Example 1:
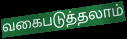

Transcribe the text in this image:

வகைபடுத்தலாம்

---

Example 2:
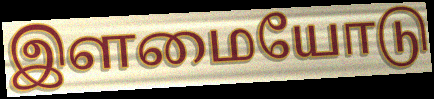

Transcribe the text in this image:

இளமையோடு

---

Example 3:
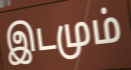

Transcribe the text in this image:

இடமும்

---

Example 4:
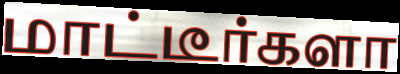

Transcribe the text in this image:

மாட்டீர்களா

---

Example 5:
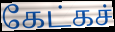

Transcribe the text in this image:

கேட்கச்